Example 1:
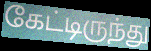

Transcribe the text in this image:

கேட்டிருந்து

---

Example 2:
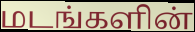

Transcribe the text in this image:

மடங்களின்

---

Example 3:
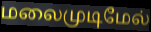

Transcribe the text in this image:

மலைமுடிமேல்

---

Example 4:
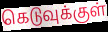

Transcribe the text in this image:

கெடுவுக்குள்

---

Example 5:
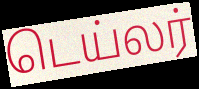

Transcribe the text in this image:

டெய்லர்